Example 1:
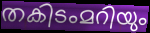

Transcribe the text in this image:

തകിടംമറിയും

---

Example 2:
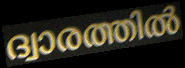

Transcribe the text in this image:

ദ്വാരത്തിൽ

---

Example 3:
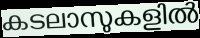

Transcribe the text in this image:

കടലാസുകളിൽ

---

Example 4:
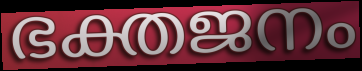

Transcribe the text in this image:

ഭക്തജനം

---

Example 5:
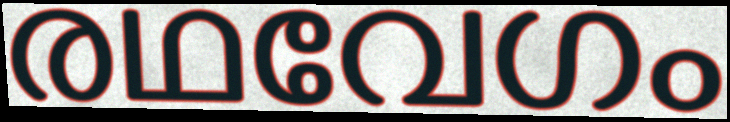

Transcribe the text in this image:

രഥവേഗം